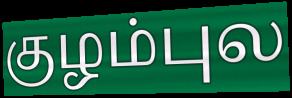
குழம்புல